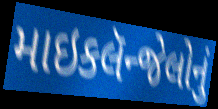
માઇકલૅન્જેલોનું